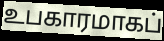
உபகாரமாகப்